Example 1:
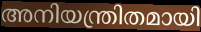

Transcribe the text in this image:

അനിയന്ത്രിതമായി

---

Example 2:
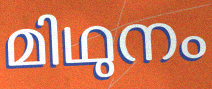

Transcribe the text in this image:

മിഥുനം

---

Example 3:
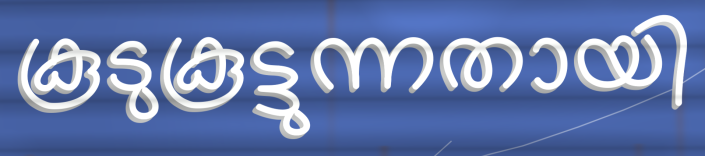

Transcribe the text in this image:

കൂടുകൂട്ടുന്നതായി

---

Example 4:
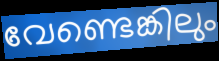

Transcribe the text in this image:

വേണ്ടെങ്കിലും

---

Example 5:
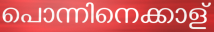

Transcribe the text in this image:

പൊന്നിനെക്കാള്